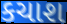
કચાશ